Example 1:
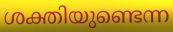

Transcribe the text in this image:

ശക്തിയുണ്ടെന്ന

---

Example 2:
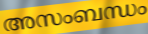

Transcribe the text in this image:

അസംബന്ധം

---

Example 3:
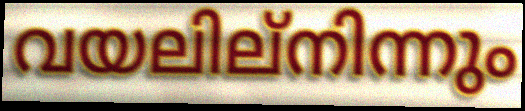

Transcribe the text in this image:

വയലില്നിന്നും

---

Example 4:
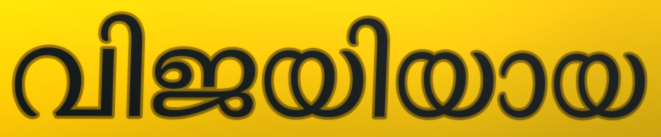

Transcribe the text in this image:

വിജയിയായ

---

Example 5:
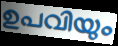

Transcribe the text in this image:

ഉപവിയും